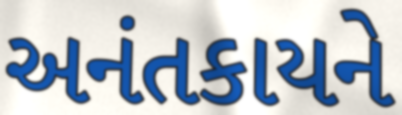
અનંતકાયને